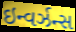
ઇન્વર્ઝન્સ